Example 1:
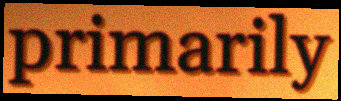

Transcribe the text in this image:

primarily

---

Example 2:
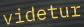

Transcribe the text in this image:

videtur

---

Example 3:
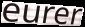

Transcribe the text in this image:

eurer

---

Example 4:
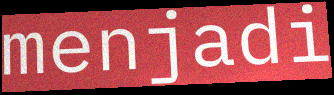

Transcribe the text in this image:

menjadi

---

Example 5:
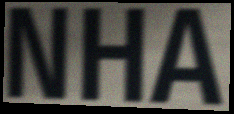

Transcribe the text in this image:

NHA